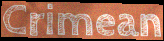
Crimean